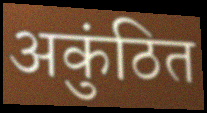
अकुंठित